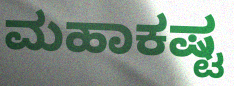
ಮಹಾಕಷ್ಟ